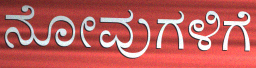
ನೋವುಗಳಿಗೆ